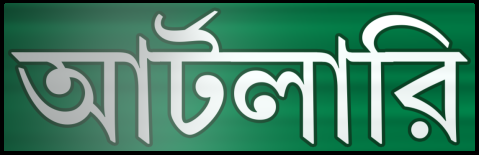
আর্টলারি